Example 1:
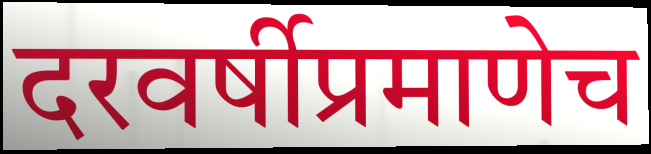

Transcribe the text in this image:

दरवर्षीप्रमाणेच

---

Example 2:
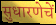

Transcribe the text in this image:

सुधारणेचें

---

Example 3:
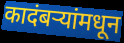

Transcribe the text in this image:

कादंबर्‍यांमधून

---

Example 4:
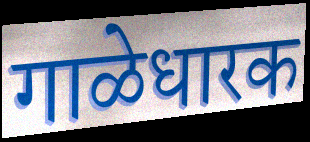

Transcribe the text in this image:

गाळेधारक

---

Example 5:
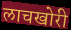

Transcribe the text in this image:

लाचखोरी